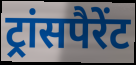
ट्रांसपैरेंट